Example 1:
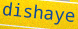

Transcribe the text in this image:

dishaye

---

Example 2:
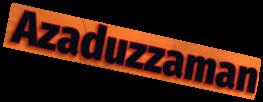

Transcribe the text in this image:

Azaduzzaman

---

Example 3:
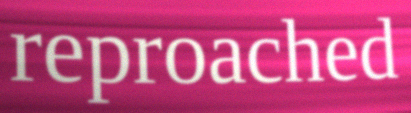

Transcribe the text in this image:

reproached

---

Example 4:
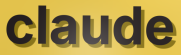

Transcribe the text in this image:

claude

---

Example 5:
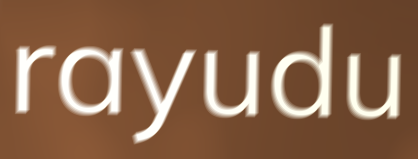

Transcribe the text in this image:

rayudu